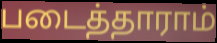
படைத்தாராம்